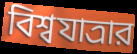
বিশ্বযাত্রার